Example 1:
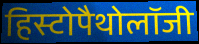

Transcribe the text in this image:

हिस्टोपैथोलॉजी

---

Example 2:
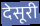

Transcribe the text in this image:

देसूरी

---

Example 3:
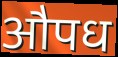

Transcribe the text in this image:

औपध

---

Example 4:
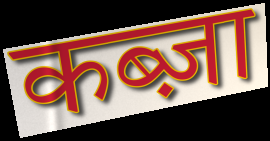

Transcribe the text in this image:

कब्ज़ा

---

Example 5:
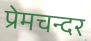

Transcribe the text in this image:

प्रेमचन्दर